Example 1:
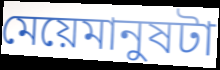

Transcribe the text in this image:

মেয়েমানুষটা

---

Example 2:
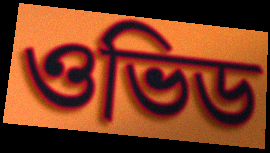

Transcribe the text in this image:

ওভিড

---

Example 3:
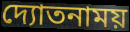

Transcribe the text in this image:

দ্যোতনাময়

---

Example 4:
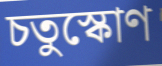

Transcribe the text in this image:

চতুস্কোণ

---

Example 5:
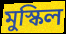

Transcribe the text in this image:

মুস্কিল